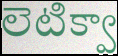
లెటిక్వా